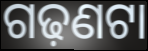
ଗଢ଼ଣଟା